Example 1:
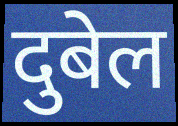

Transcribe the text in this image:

दुबेल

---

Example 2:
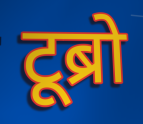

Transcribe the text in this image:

टूब्रो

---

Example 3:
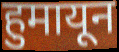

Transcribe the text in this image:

हुमायून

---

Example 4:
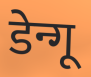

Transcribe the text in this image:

डेन्गू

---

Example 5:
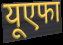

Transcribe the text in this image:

यूएफा